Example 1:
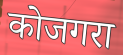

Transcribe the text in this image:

कोजगरा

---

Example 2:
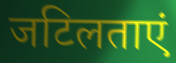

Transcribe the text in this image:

जटिलताएं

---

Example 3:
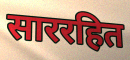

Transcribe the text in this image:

साररहित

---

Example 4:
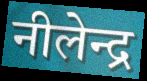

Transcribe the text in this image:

नीलेन्द्र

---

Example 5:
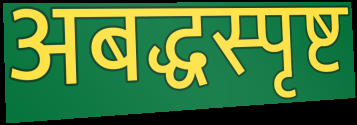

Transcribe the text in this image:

अबद्धस्पृष्ट